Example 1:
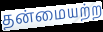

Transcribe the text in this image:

தன்மையற்ற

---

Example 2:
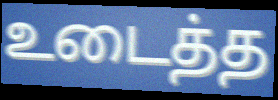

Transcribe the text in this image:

உடைத்த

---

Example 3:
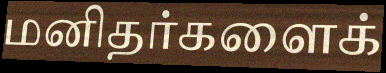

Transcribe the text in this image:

மனிதர்களைக்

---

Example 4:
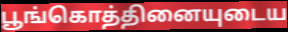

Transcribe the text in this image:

பூங்கொத்தினையுடைய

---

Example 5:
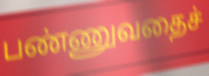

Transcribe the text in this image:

பண்ணுவதைச்